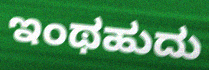
ಇಂಥಹುದು